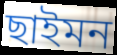
ছাইমন